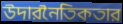
উদারনৈতিকতার